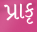
પ્રાકૃ